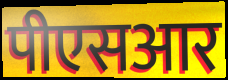
पीएसआर